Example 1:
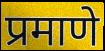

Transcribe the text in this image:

प्रमाणे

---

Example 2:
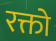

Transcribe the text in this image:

रक्तो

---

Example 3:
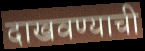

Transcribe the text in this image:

दाखवण्याची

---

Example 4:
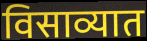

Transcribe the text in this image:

विसाव्यात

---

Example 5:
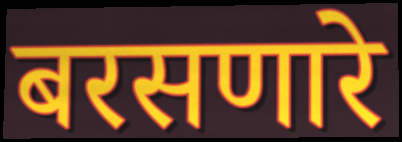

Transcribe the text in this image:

बरसणारे